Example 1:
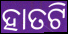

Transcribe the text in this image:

ହାତଟି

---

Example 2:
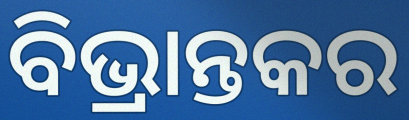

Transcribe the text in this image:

ବିଭ୍ରାନ୍ତକର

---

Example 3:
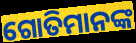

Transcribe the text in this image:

ଗୋତିମାନଙ୍କ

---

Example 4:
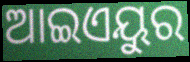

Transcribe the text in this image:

ଆଇଏୟୁର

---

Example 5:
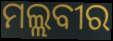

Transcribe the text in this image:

ମଲ୍ଲବୀର